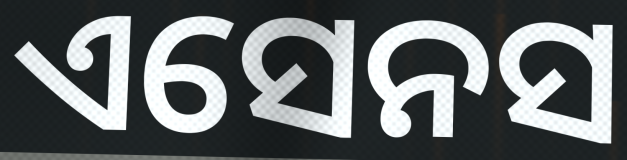
ଏସେନସ